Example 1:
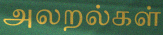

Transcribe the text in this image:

அலறல்கள்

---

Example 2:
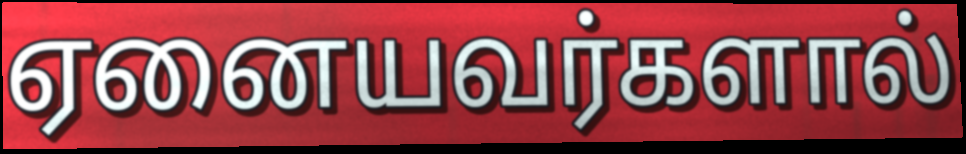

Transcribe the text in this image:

ஏனையவர்களால்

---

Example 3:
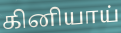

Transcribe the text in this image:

கினியாய்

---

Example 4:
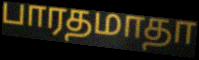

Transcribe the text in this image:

பாரதமாதா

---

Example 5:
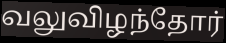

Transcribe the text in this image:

வலுவிழந்தோர்